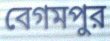
বেগমপুর